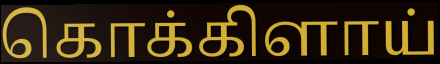
கொக்கிளாய்